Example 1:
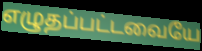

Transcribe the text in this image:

எழுதப்பட்டவையே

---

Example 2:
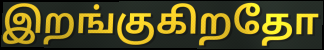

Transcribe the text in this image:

இறங்குகிறதோ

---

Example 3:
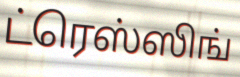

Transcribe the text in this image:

ட்ரெஸ்ஸிங்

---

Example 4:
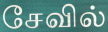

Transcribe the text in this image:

சேவில்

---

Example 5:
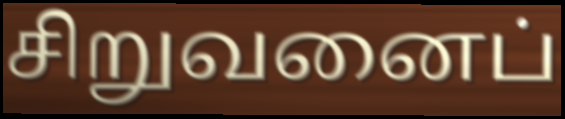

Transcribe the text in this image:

சிறுவனைப்